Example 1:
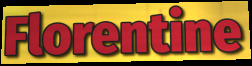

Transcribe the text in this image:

Florentine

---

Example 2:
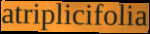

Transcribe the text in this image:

atriplicifolia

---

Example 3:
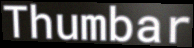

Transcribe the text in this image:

Thumbar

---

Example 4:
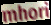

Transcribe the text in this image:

mhori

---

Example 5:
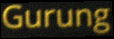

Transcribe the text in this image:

Gurung